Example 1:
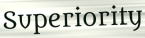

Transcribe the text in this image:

Superiority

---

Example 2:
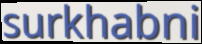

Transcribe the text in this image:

surkhabni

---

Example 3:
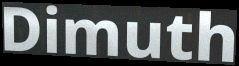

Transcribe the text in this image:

Dimuth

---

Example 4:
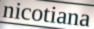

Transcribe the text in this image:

nicotiana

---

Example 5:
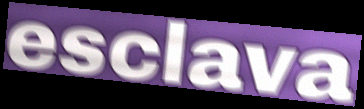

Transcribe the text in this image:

esclava